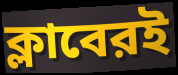
ক্লাবেরই